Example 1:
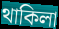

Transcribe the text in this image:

থাকিলা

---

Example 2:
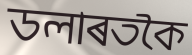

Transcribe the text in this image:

ডলাৰতকৈ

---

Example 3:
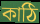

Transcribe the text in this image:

কাঠি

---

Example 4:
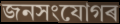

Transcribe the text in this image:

জনসংযোগৰ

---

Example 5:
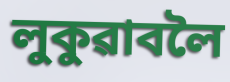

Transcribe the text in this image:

লুকুৱাবলৈ